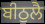
ਬੀਠੁਲੈ